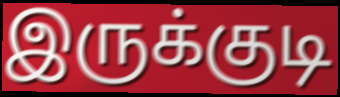
இருக்குடி